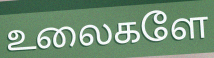
உலைகளே